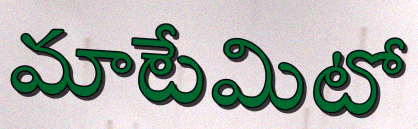
మాటేమిటో